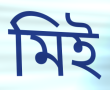
মিই